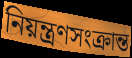
নিয়ন্ত্রণসংক্রান্ত